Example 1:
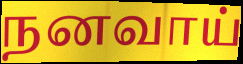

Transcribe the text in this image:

நனவாய்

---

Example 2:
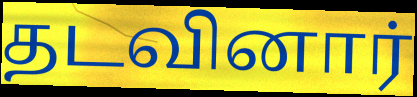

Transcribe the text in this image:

தடவினார்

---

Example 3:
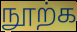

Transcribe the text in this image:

நூற்க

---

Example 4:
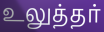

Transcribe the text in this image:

உலுத்தர்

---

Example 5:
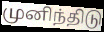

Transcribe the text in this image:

முனிந்திடு